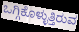
ಒಗ್ಗಿಕೊಳ್ಳುತ್ತಿರುವ